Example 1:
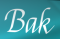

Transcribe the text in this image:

Bak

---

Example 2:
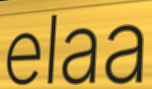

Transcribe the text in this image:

elaa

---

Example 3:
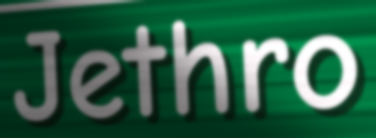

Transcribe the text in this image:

Jethro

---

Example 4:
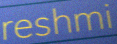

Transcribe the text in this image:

reshmi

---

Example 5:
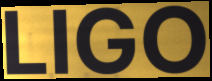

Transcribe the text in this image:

LIGO